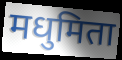
मधुमिता